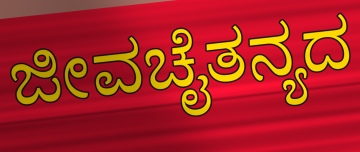
ಜೀವಚೈತನ್ಯದ